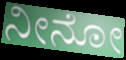
ನೀನೋ